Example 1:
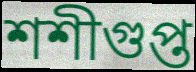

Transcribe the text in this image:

শশীগুপ্ত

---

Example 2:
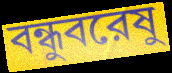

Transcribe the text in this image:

বন্ধুবরেষু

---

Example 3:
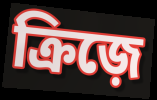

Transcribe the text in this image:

ক্রিজ়ে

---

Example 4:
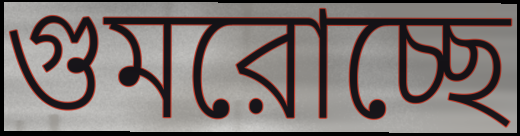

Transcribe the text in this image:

গুমরোচ্ছে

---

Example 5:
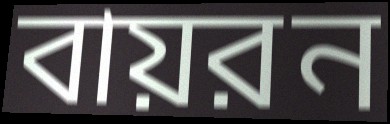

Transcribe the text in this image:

বায়রন